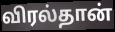
விரல்தான்